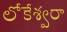
లోకేశ్వరా